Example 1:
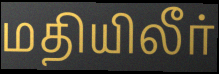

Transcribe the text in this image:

மதியிலீர்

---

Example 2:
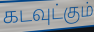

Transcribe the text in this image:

கடவுட்கும்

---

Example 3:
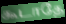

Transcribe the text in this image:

கூடாதே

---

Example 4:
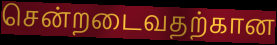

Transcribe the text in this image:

சென்றடைவதற்கான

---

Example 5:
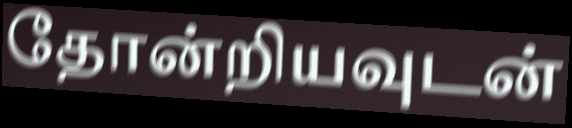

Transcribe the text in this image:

தோன்றியவுடன்